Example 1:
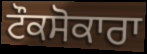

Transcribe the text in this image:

ਟੌਕਸੋਕਾਰਾ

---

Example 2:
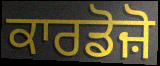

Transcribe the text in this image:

ਕਾਰਡੋਜ਼ੋ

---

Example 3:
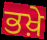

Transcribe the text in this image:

ਭਖ਼ੇ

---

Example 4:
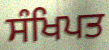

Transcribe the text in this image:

ਸੰਖਿਪਤ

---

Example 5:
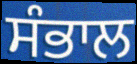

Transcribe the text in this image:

ਸੰਭਾਲ